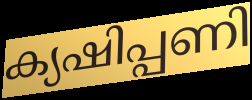
ക്യഷിപ്പണി